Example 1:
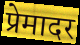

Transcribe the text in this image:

प्रेमादर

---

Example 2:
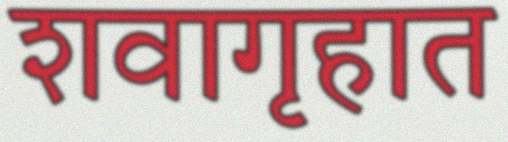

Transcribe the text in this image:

शवागृहात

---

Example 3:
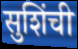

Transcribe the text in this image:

सुशिंची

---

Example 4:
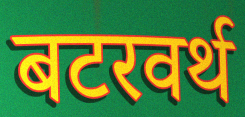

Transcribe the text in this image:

बटरवर्थ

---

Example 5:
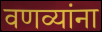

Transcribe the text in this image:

वणव्यांना